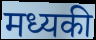
मध्यकी